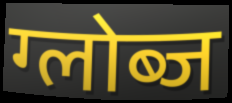
ग्लोब्ज